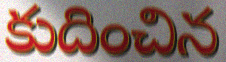
కుదించిన